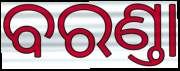
ବରଣ୍ତା